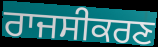
ਰਾਜਸੀਕਰਣ